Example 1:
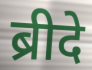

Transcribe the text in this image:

ब्रीदे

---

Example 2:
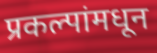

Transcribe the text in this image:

प्रकल्पांमधून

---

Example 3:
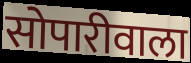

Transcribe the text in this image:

सोपारीवाला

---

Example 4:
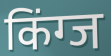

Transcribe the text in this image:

किंग्ज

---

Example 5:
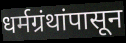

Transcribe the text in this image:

धर्मग्रंथांपासून